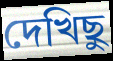
দেখিছু